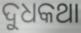
ଦୁଧକଥା